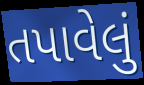
તપાવેલું